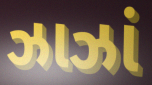
ઝાઝાં